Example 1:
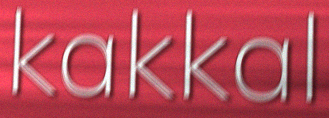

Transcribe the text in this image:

kakkal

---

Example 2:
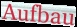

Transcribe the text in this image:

Aufbau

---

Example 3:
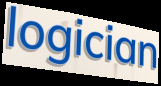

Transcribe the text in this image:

logician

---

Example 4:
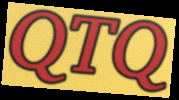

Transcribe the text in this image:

QTQ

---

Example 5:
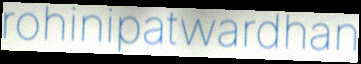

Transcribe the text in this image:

rohinipatwardhan